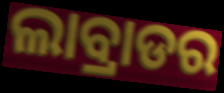
ଲାବ୍ରାଡର